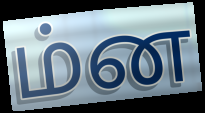
ம்ன